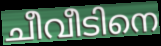
ചീവീടിനെ